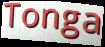
Tonga